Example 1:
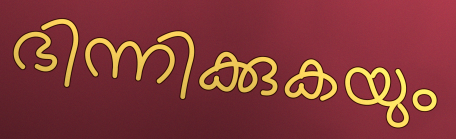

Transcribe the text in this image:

ഭിന്നിക്കുകയും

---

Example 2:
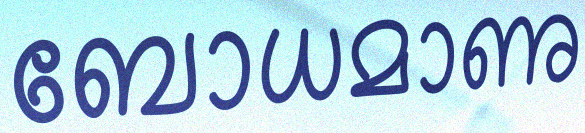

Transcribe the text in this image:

ബോധമാണു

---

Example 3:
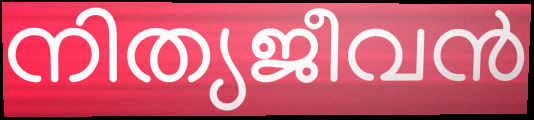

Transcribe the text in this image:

നിത്യജീവൻ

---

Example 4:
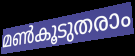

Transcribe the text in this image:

മൺകൂടുതരാം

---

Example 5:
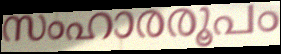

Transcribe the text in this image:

സംഹാരരൂപം